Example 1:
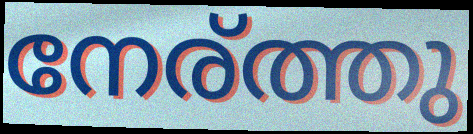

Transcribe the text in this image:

നേര്ത്തു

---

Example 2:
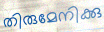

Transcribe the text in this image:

തിരുമേനിക്കു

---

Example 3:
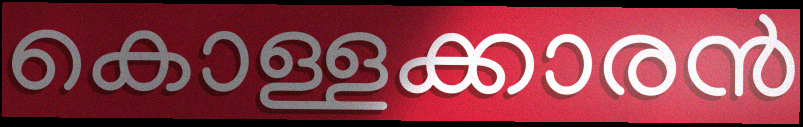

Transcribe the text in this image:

കൊള്ളക്കാരൻ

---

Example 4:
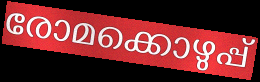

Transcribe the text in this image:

രോമക്കൊഴുപ്പ്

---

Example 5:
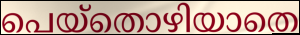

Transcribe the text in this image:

പെയ്തൊഴിയാതെ